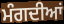
ਮੰਗਦੀਆਂ